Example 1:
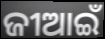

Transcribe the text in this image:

ଜୀଆଇଁ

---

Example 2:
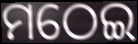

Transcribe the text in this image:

ମଠେଇ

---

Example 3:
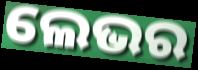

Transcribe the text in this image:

ଲେଭର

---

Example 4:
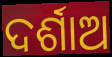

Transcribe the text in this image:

ଦର୍ଶାଅ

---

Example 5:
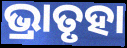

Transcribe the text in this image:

ଭ୍ରାତୃହା